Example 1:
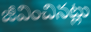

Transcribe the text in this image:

జీవించినట్లు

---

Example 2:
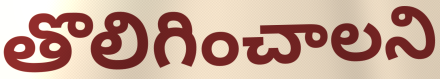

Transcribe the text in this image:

తొలిగించాలని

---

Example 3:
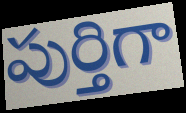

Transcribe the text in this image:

పుర్తిగా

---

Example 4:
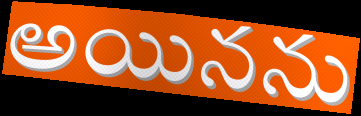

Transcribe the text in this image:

అయినను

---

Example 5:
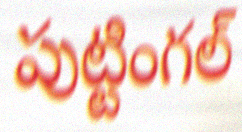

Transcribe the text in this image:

పుట్టింగల్